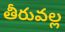
తీరువల్ల